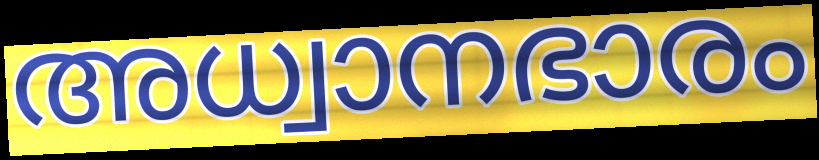
അധ്വാനഭാരം